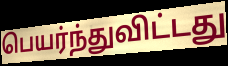
பெயர்ந்துவிட்டது